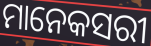
ମାନେକସରୀ